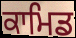
ਕਾਮਿਡ